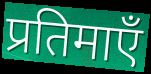
प्रतिमाएँ